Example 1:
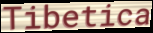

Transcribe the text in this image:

Tibetica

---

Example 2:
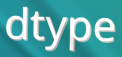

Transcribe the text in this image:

dtype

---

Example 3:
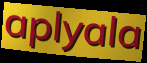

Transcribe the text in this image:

aplyala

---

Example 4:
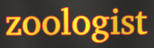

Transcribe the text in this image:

zoologist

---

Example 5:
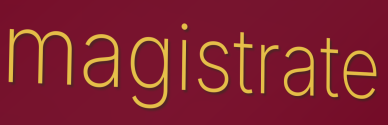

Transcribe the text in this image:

magistrate